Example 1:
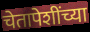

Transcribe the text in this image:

चेतापेशींच्या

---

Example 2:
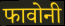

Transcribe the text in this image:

फावोनी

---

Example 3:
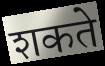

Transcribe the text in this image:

शकते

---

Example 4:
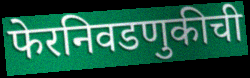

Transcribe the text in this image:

फेरनिवडणुकीची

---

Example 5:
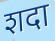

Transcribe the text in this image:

शदा